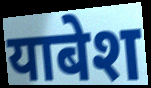
याबेश